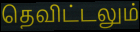
தெவிட்டலும்